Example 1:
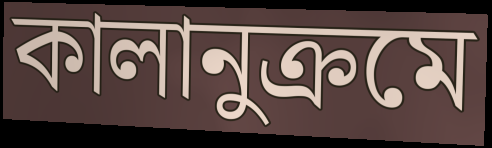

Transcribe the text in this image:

কালানুক্রমে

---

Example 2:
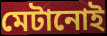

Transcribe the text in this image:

মেটানোই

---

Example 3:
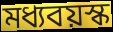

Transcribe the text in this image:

মধ্যবয়স্ক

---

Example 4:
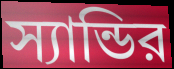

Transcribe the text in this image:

স্যান্ডির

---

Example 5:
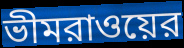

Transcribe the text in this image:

ভীমরাওয়ের